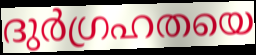
ദുർഗ്രഹതയെ